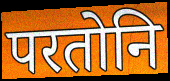
परतोनि